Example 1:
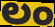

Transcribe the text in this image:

ಲಂ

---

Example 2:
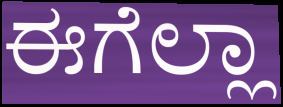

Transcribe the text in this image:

ಈಗೆಲ್ಲಾ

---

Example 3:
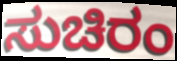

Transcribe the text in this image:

ಸುಚಿರಂ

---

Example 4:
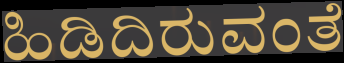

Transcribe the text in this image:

ಹಿಡಿದಿರುವಂತೆ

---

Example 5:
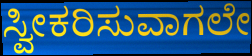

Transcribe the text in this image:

ಸ್ವೀಕರಿಸುವಾಗಲೇ